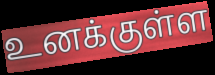
உனக்குள்ள